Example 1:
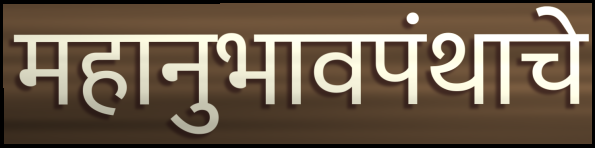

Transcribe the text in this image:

महानुभावपंथाचे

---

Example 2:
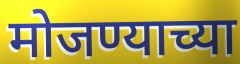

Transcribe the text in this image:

मोजण्याच्या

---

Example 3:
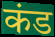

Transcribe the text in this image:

कंड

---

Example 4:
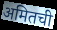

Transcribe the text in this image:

अमितची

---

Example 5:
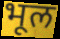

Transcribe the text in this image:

भूल